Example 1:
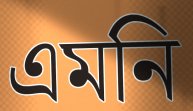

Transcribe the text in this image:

এমনি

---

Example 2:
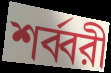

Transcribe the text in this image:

শর্ব্বরী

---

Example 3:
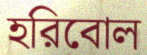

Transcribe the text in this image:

হরিবোল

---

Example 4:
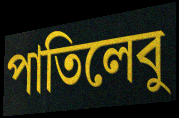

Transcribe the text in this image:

পাতিলেবু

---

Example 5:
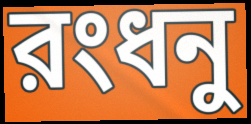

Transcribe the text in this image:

রংধনু